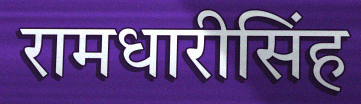
रामधारीसिंह